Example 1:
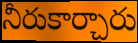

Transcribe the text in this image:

నీరుకార్చారు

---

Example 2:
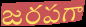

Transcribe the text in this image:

జరపగా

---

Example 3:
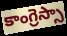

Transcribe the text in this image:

కాంగ్రెస్సా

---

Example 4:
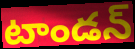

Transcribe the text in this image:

టాండన్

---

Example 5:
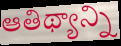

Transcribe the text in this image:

ఆతిథ్యాన్ని